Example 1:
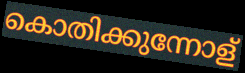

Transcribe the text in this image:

കൊതിക്കുന്നോള്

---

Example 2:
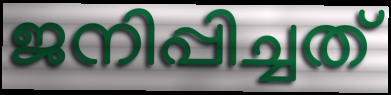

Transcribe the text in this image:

ജനിപ്പിച്ചത്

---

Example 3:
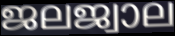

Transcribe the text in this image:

ജലജ്വാല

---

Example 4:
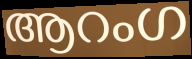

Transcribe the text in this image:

ആറംഗ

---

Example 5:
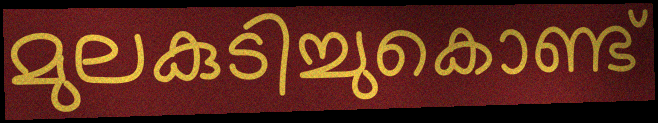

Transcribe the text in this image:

മുലകുടിച്ചുകൊണ്ട്